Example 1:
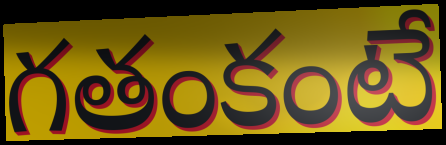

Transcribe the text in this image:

గతంకంటే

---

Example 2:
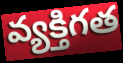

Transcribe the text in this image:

వ్యక్తిగత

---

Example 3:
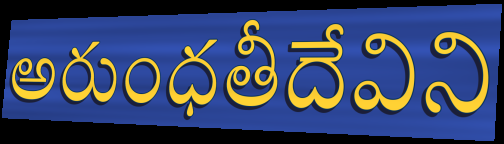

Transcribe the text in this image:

అరుంధతీదేవిని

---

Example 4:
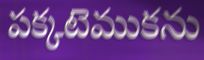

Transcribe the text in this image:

పక్కటెముకను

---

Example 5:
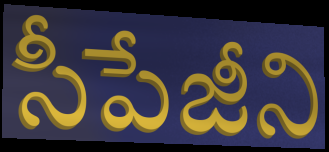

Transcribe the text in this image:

సీపేజీని